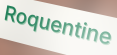
Roquentine